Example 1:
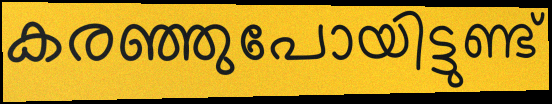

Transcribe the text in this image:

കരഞ്ഞുപോയിട്ടുണ്ട്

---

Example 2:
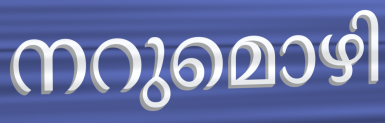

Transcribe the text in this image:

നറുമൊഴി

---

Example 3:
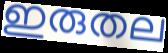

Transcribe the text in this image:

ഇരുതല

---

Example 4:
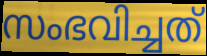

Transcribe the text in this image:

സംഭവിച്ചത്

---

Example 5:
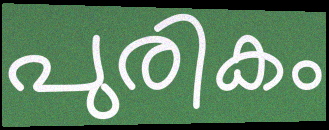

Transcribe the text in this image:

പുരികം